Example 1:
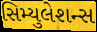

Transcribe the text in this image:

સિમ્યુલેશન્સ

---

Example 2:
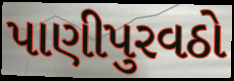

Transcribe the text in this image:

પાણીપુરવઠો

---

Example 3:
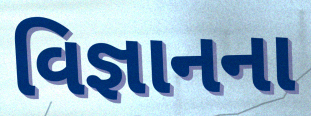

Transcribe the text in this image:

વિજ્ઞાનના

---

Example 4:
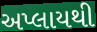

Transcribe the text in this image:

અપ્લાયથી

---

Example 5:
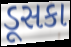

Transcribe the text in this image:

ડૂસકા